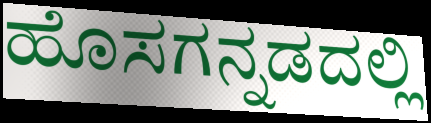
ಹೊಸಗನ್ನಡದಲ್ಲಿ